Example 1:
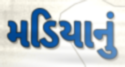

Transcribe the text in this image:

મડિયાનું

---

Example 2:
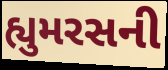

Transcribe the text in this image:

હ્યુમરસની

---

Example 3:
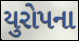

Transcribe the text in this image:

યુરોપના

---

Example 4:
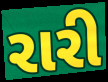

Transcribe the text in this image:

રારી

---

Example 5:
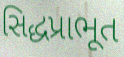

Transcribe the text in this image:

સિદ્ધપ્રાભૂત